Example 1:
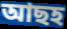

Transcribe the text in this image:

আছহ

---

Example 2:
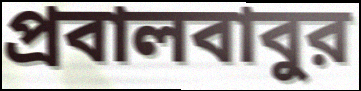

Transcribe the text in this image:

প্রবালবাবুর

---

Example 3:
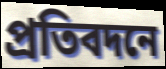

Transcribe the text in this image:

প্রতিবদনে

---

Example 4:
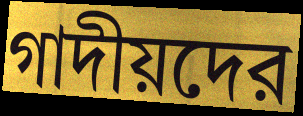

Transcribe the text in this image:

গাদীয়দের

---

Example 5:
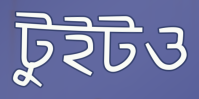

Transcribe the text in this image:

টুইটও